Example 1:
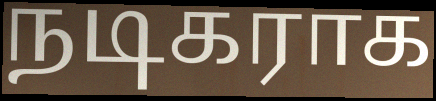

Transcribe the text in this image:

நடிகராக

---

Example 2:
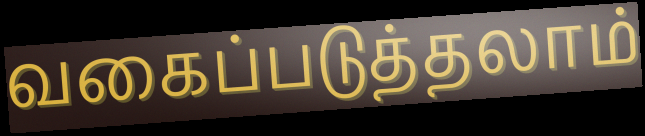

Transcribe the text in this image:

வகைப்படுத்தலாம்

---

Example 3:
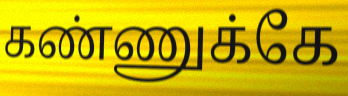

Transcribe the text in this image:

கண்ணுக்கே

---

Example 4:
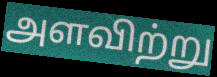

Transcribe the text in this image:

அளவிற்று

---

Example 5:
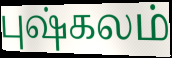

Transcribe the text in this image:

புஷ்கலம்